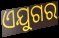
ଏଯୁଗର